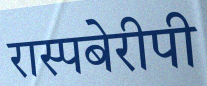
रास्पबेरीपी